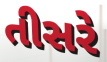
તીસરે